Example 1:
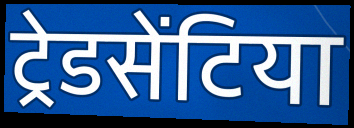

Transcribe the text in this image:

ट्रेडसेंटिया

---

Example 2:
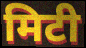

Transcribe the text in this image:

मिटी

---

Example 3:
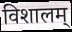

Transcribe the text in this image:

विशालम्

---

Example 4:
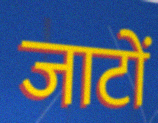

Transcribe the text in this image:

जाटों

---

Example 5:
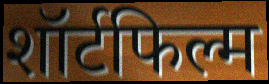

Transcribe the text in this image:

शॉर्टफिल्म